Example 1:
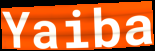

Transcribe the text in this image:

Yaiba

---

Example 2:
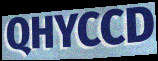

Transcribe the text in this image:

QHYCCD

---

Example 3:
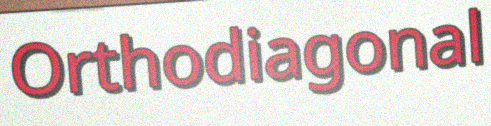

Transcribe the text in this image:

Orthodiagonal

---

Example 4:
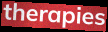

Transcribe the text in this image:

therapies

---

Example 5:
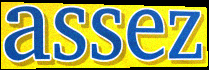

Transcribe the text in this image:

assez